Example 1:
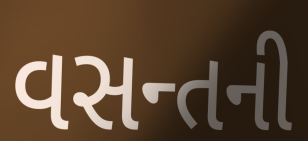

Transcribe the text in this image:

વસન્તની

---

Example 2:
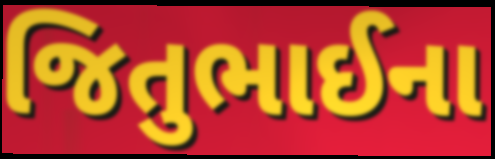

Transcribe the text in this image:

જિતુભાઈના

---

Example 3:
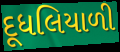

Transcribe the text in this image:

દૂધલિયાળી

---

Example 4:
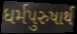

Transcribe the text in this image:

ધર્મપુરુષાર્થ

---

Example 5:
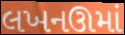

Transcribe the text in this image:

લખનઊમાં